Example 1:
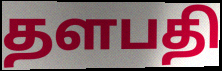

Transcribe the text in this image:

தளபதி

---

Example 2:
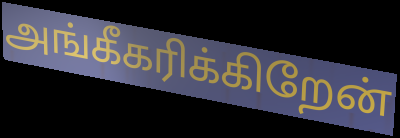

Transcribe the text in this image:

அங்கீகரிக்கிறேன்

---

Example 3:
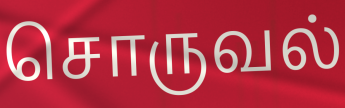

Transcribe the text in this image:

சொருவல்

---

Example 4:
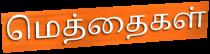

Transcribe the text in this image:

மெத்தைகள்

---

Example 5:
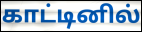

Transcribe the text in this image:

காட்டினில்